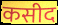
कसीद